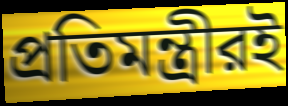
প্রতিমন্ত্রীরই